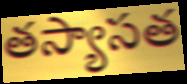
తస్యాసత